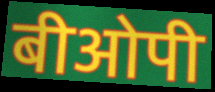
बीओपी